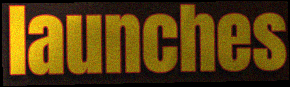
launches